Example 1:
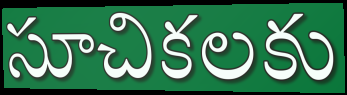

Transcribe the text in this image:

సూచికలకు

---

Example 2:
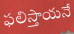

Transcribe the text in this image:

ఫలిస్తాయనే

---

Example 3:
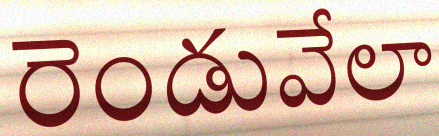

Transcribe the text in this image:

రెండువేలా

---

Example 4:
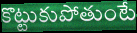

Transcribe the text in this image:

కొట్టుకుపోతుంటే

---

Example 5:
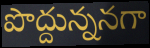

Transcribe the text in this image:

పొద్దున్ననగా